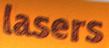
lasers